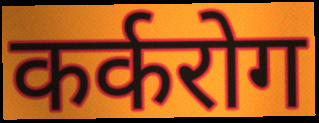
कर्करोग